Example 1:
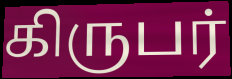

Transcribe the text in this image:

கிருபர்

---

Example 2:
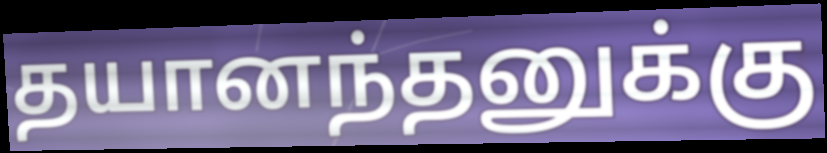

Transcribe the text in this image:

தயானந்தனுக்கு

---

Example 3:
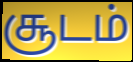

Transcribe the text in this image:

சூடம்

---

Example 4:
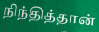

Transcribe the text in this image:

நிந்தித்தான்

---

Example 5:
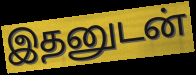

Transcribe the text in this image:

இதனுடன்